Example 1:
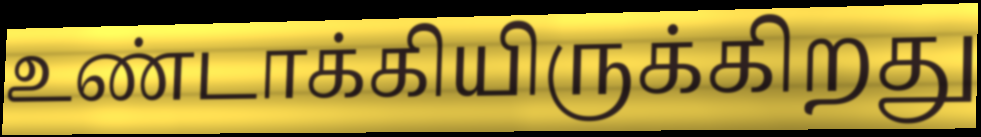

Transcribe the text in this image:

உண்டாக்கியிருக்கிறது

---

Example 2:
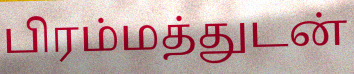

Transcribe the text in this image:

பிரம்மத்துடன்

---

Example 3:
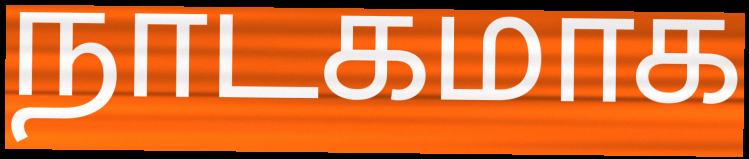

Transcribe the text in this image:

நாடகமாக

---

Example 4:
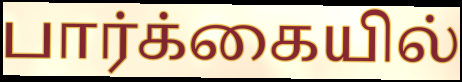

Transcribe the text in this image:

பார்க்கையில்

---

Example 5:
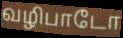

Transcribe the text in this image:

வழிபாடோ